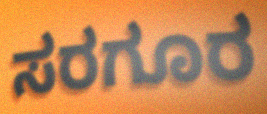
ಸರಗೂರ